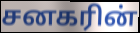
சனகரின்